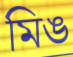
মিঙ